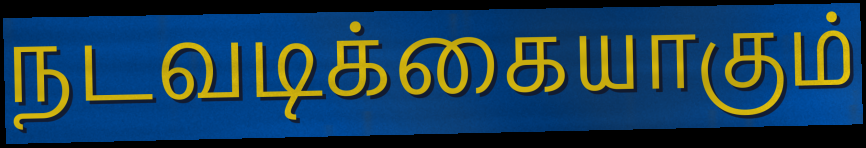
நடவடிக்கையாகும்